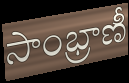
సాంభ్రాణీ